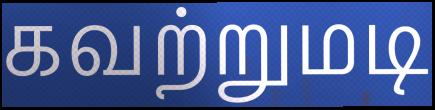
கவற்றுமடி